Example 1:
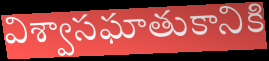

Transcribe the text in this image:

విశ్వాసఘాతుకానికి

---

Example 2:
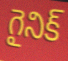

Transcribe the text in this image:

గైనిక్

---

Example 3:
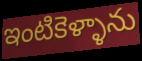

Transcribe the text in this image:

ఇంటికెళ్ళాను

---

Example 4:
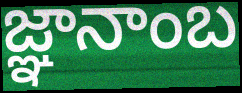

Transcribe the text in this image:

జ్ఞానాంబ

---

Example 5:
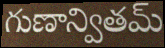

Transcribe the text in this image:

గుణాన్వితమ్